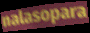
nalasopara